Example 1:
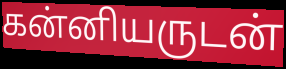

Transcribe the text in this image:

கன்னியருடன்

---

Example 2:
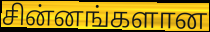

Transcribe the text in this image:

சின்னங்களான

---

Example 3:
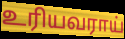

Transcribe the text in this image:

உரியவராய்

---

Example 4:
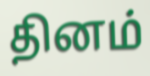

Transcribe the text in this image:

தினம்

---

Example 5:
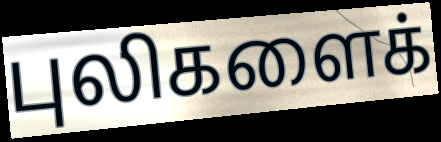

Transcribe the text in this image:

புலிகளைக்